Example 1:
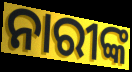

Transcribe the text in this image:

ନାରୀଙ୍କ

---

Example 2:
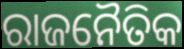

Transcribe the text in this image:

ରାଜନୈତିକ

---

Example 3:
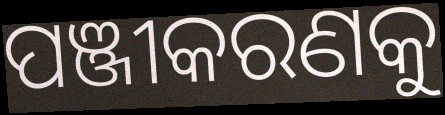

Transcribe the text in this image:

ପଞ୍ଜୀକରଣକୁ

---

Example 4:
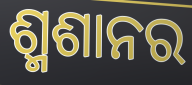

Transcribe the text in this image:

ଶ୍ମଶାନର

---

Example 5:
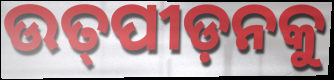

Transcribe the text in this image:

ଉତ୍‌ପୀଡ଼ନକୁ